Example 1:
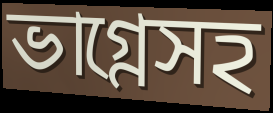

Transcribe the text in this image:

ভাগ্নেসহ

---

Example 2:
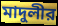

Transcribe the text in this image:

মাদুলীর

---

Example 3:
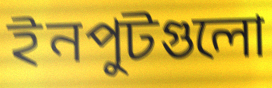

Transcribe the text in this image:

ইনপুটগুলো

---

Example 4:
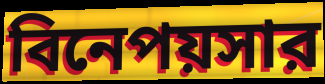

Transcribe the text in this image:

বিনেপয়সার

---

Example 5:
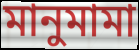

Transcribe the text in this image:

মানুমামা